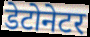
डेटोनेटर